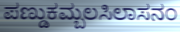
ಪಣ್ಡುಕಮ್ಬಲಸಿಲಾಸನಂ